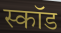
स्कॉड